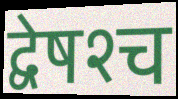
द्वेषश्च